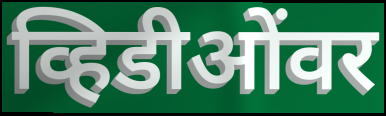
व्हिडीओंवर